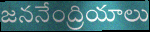
జననేంద్రియాలు